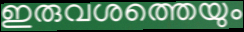
ഇരുവശത്തെയും